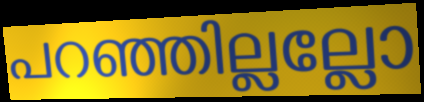
പറഞ്ഞില്ലല്ലോ